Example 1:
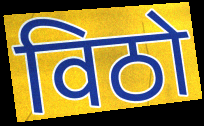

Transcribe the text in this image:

विठो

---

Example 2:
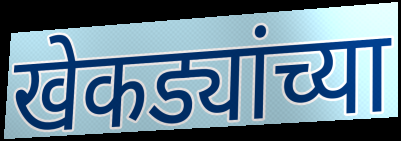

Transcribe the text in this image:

खेकड्यांच्या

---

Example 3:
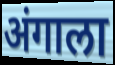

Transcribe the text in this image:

अंगाला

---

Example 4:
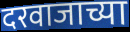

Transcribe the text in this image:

दरवाजाच्या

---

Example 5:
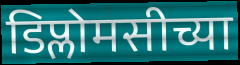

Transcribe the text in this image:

डिप्लोमसीच्या